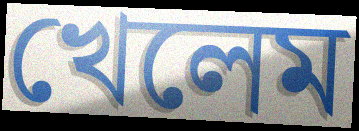
খেলেম